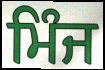
ਮਿੰਜ